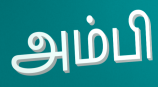
அம்பி